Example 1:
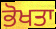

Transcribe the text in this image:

ਭੋਖਤਾ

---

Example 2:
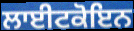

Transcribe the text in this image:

ਲਾਈਟਕੋਇਨ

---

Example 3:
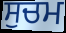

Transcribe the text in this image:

ਸੁਚਮ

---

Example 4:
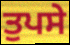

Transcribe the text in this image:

ਤੁਪਸੇ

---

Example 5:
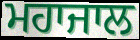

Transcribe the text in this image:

ਮਹਾਜਾਲ